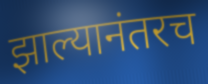
झाल्यानंतरच